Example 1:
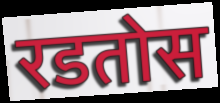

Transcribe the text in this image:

रडतोस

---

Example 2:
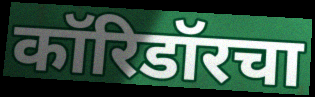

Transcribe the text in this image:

कॉरिडॉरचा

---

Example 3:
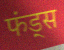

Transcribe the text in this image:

फंड्‌स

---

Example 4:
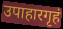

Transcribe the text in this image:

उपाहारगृहं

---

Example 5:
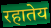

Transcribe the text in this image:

रहातेय